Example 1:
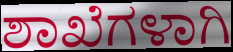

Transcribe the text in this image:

ಶಾಖೆಗಳಾಗಿ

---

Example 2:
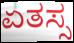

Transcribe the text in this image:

ಏತಸ್ಸ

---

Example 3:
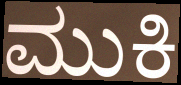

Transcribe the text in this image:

ಮುಕಿ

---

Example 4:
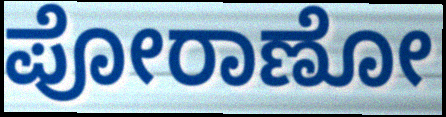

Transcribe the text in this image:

ಪೋರಾಣೋ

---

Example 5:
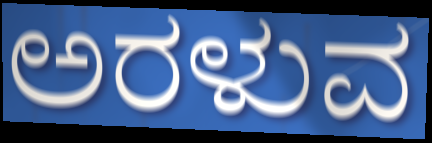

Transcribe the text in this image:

ಅರಳುವ